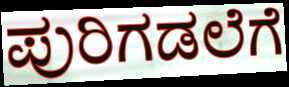
ಪುರಿಗಡಲೆಗೆ